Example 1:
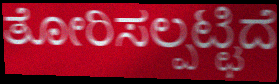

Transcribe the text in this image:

ತೋರಿಸಲ್ಪಟ್ಟಿದೆ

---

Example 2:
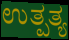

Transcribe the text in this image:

ಉತ್ಪತ್ಯ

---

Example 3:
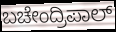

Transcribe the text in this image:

ಬಚೇಂದ್ರಿಪಾಲ್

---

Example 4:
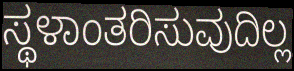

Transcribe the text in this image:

ಸ್ಥಳಾಂತರಿಸುವುದಿಲ್ಲ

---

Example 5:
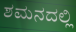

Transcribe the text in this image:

ಶಮನದಲ್ಲಿ